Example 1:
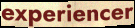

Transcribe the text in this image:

experiencer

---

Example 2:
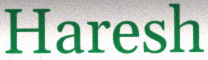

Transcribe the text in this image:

Haresh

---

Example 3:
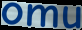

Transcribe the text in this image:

omu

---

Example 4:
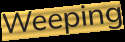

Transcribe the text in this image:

Weeping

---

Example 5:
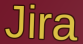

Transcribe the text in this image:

Jira